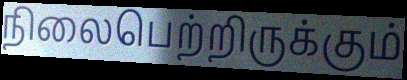
நிலைபெற்றிருக்கும்